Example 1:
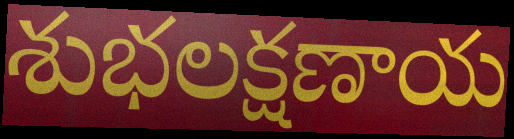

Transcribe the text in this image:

శుభలక్షణాయ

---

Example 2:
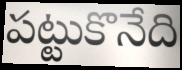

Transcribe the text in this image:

పట్టుకొనేది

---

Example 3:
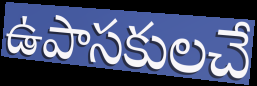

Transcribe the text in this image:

ఉపాసకులచే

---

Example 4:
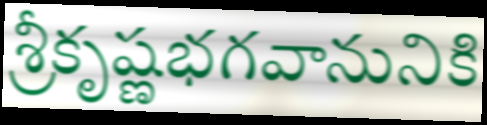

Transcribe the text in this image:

శ్రీకృష్ణభగవానునికి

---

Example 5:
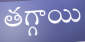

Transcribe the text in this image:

తగ్గాయి